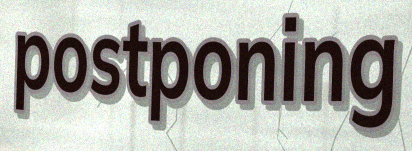
postponing